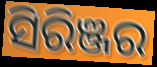
ସିରିଞ୍ଜର